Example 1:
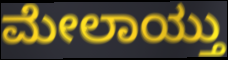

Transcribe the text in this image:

ಮೇಲಾಯ್ತು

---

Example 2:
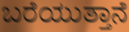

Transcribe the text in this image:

ಬರೆಯುತ್ತಾನೆ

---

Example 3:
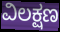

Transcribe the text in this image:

ವಿಲಕ್ಷಣ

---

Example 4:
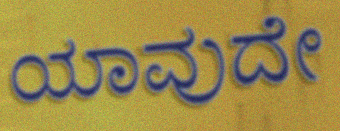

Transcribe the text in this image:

ಯಾವುದೇ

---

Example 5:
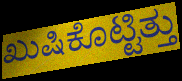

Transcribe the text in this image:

ಖುಷಿಕೊಟ್ಟಿತ್ತು